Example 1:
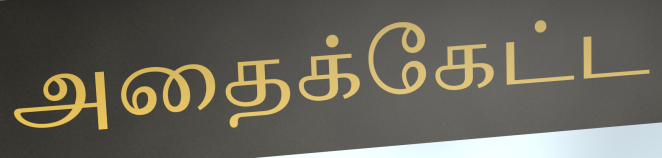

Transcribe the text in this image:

அதைக்கேட்ட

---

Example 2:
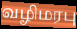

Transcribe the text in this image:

வழிமரபு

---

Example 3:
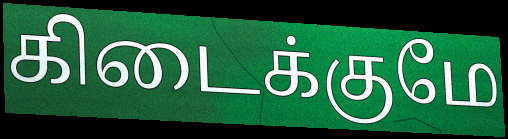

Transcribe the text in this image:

கிடைக்குமே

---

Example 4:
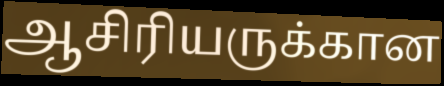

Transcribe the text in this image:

ஆசிரியருக்கான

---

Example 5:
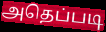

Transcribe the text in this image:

அதெப்படி